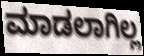
ಮಾಡಲಾಗಿಲ್ಲ